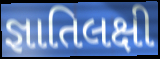
જ્ઞાતિલક્ષી